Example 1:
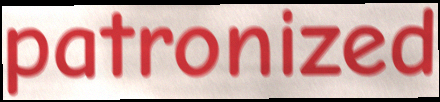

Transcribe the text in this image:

patronized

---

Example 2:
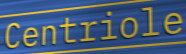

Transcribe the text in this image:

Centriole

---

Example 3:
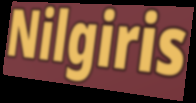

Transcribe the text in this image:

Nilgiris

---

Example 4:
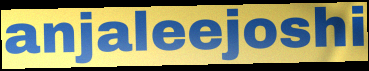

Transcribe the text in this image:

anjaleejoshi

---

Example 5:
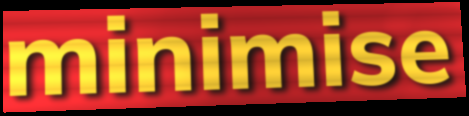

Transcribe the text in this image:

minimise